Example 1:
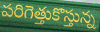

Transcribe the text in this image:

పరిగెత్తుకొస్తున్న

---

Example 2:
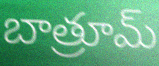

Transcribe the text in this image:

బాత్రూమ్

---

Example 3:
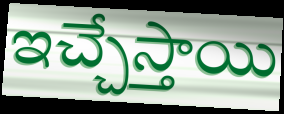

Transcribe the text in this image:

ఇచ్చేస్తాయి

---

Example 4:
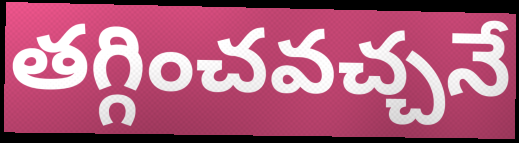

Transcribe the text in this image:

తగ్గించవచ్చనే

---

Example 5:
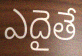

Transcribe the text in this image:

ఎదైతే